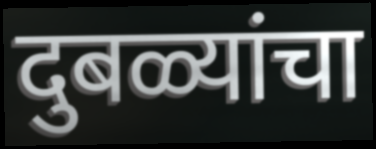
दुबळ्यांचा